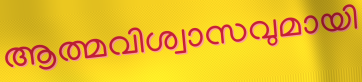
ആത്മവിശ്വാസവുമായി